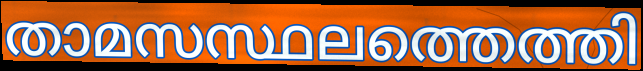
താമസസ്ഥലത്തെത്തി